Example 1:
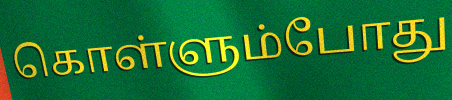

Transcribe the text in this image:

கொள்ளும்போது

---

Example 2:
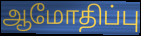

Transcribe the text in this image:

ஆமோதிப்பு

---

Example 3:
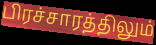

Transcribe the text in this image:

பிரச்சாரத்திலும்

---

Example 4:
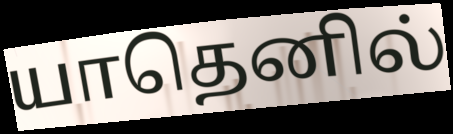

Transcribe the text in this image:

யாதெனில்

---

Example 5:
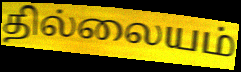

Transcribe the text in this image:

தில்லையம்